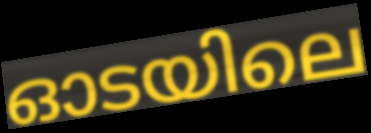
ഓടയിലെ